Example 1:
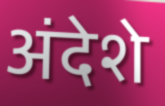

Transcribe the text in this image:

अंदेशे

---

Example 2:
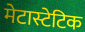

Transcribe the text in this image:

मेटास्टेटिक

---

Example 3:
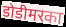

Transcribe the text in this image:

डोडीमरका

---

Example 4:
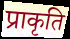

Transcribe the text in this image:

प्राकृति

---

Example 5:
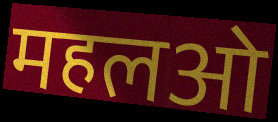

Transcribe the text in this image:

महलओ